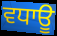
ਵਧਾਊ